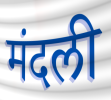
मंदली